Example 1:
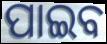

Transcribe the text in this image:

ପାଇବ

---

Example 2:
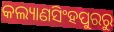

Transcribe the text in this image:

କଲ୍ୟାଣସିଂହପୁରରୁ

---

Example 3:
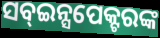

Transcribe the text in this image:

ସବ୍ଇନ୍ସପେକ୍ଟରଙ୍କ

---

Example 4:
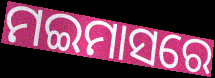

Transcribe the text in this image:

ମଇମାସରେ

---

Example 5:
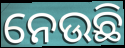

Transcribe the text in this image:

ନେଉଛି